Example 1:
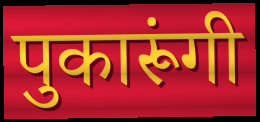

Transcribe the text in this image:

पुकारूंगी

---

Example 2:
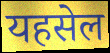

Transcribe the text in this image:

यहसेल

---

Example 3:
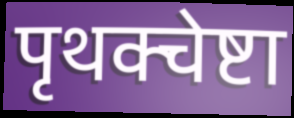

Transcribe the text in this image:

पृथक्चेष्टा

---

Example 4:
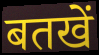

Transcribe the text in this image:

बतखें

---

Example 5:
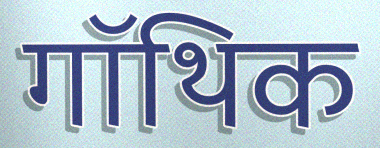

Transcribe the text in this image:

गॉथिक